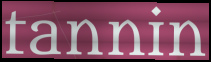
tannin